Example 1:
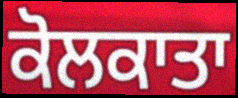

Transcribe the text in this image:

ਕੋਲਕਾਤਾ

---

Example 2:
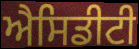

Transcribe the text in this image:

ਐਸਿਡੀਟੀ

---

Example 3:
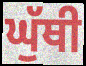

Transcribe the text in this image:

ਘੁੱਥੀ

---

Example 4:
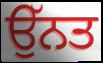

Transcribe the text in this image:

ਉੱਨਤ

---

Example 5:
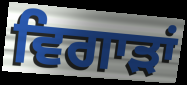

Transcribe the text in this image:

ਵਿਗਾੜਾਂ